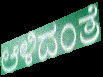
ಆಳಿದಂತೆ